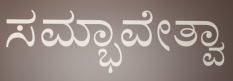
ಸಮ್ಭಾವೇತ್ವಾ